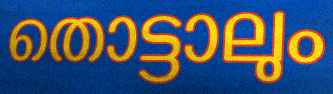
തൊട്ടാലും